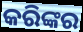
କରିଙ୍କର